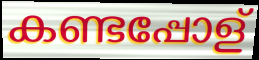
കണ്ടപ്പോള്